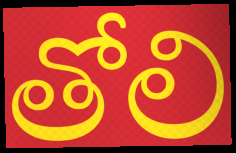
తోలి